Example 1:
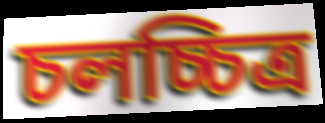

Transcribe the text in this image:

চলচ্চিত্র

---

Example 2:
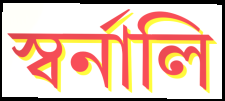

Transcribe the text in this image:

স্বর্নালি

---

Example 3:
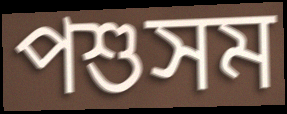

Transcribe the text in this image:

পশুসম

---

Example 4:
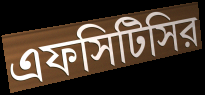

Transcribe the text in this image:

এফসিটিসির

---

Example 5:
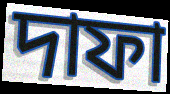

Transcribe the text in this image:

দাফা